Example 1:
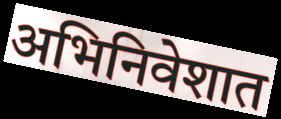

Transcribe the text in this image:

अभिनिवेशात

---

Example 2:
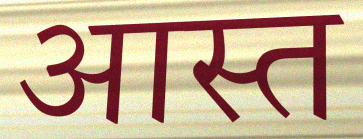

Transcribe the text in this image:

आस्त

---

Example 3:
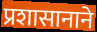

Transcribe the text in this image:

प्रशासानाने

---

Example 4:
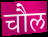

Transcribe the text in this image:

चौल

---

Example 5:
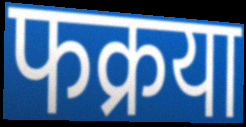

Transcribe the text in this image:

फक्रया